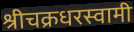
श्रीचक्रधरस्वामी